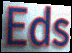
Eds